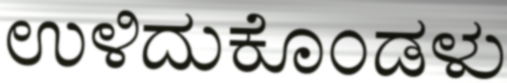
ಉಳಿದುಕೊಂಡಳು